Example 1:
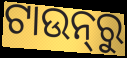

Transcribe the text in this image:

ଟାଉନ୍‌ରୁ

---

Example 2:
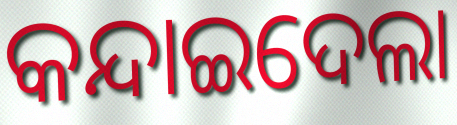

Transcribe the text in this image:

କନ୍ଦାଇଦେଲା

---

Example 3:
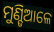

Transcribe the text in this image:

ମୁଣ୍ଡିଆଳେ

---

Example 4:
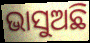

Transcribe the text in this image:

ଭାସୁଅଛି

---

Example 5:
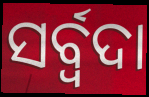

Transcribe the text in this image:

ସର୍ବ୍ବଦା